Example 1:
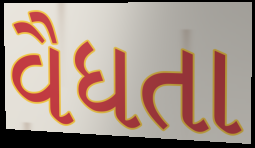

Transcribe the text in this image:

વૈધતા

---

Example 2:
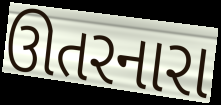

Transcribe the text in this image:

ઊતરનારા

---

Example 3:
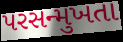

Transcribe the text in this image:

પરસન્મુખતા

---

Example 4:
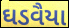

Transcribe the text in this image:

ઘડવૈયા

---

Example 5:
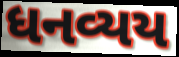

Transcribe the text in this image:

ધનવ્યય